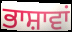
ਭਾਸ਼ਾਵਾਂ